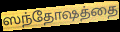
ஸந்தோஷத்தை